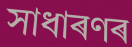
সাধাৰণৰ